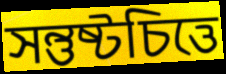
সন্তুষ্টচিত্তে